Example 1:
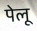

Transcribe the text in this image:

पेलू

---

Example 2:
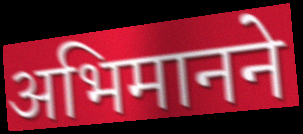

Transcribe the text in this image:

अभिमानने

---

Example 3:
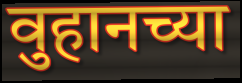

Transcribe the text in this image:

वुहानच्या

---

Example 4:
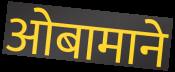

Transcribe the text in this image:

ओबामाने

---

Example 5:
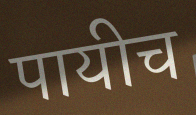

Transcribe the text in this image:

पायीच